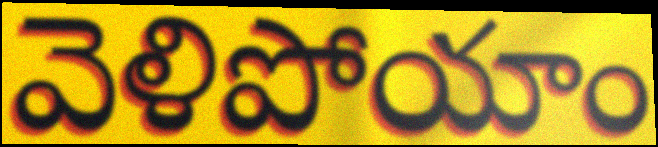
వెళిపోయాం